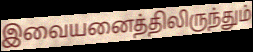
இவையனைத்திலிருந்தும்